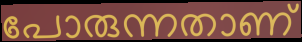
പോരുന്നതാണ്